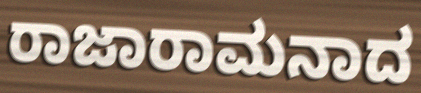
ರಾಜಾರಾಮನಾದ